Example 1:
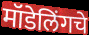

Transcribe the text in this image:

मॉडेलिंगचे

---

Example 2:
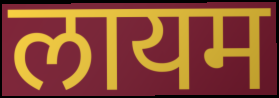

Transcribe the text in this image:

लायम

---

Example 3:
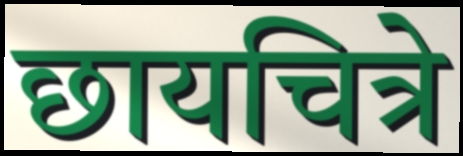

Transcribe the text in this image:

छायचित्रे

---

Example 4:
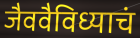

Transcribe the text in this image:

जैववैविध्याचं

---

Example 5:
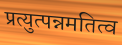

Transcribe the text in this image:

प्रत्युत्पन्नमतित्व